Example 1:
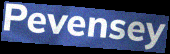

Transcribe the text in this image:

Pevensey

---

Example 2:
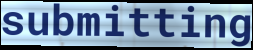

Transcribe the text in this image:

submitting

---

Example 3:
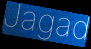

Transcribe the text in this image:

Jagad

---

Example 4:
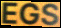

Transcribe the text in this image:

EGS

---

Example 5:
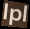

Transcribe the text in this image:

Ipl